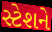
સ્ટેશને